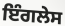
ਇੰਗਲੇਸ